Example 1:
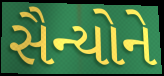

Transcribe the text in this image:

સૈન્યોને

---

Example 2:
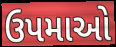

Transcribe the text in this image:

ઉપમાઓ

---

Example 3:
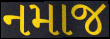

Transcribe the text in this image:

નમાજ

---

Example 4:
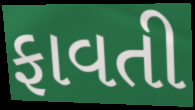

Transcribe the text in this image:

ફાવતી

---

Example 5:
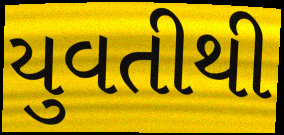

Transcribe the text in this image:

યુવતીથી